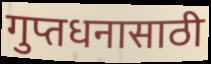
गुप्तधनासाठी